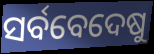
ସର୍ବବେଦେଷୁ